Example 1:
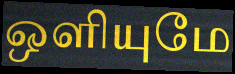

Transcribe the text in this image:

ஒளியுமே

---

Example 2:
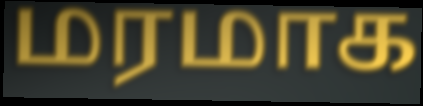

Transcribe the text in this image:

மரமாக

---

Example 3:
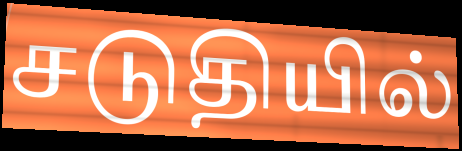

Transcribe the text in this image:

சடுதியில்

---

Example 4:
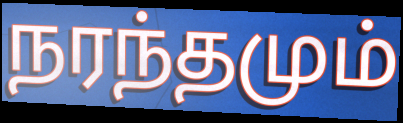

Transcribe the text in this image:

நரந்தமும்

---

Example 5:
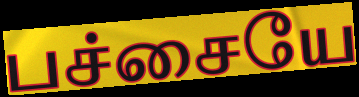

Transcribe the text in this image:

பச்சையே